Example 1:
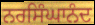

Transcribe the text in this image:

ਨਰਸਿੰਘਾਨੰਦ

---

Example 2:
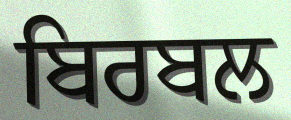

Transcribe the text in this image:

ਬਿਰਬਲ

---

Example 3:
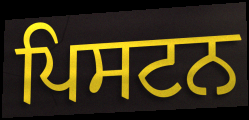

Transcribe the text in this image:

ਪਿਸਟਨ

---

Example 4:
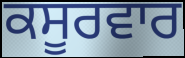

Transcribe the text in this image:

ਕਸੂਰਵਾਰ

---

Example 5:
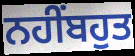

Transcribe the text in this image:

ਨਹੀਂਬਹੁਤ